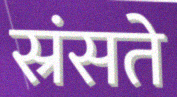
स्रंसते